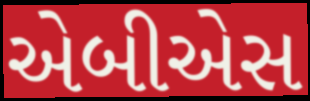
એબીએસ